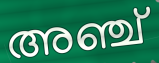
അഞ്ച്